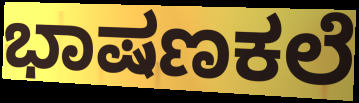
ಭಾಷಣಕಲೆ